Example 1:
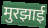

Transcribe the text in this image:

मुरझाई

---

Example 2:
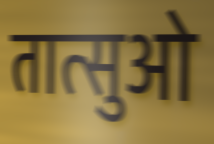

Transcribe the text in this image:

तात्सुओ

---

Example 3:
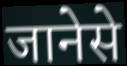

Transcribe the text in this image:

जानेसे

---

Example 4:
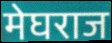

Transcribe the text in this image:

मेघराज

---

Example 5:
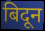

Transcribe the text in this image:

बिदून